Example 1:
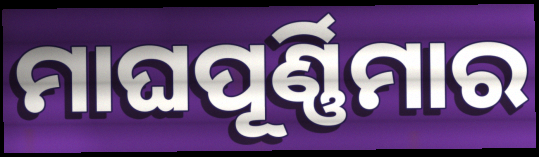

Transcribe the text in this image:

ମାଘପୂର୍ଣ୍ଣିମାର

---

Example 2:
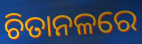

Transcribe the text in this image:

ଚିତାନଳରେ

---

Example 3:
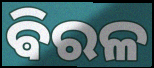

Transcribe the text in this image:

ଵିରଳ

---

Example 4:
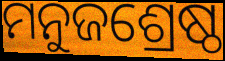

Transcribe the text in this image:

ମନୁଜଶ୍ରେଷ୍ଠ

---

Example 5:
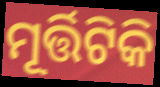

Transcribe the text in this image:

ମୂର୍ତ୍ତିଟିକି